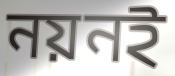
নয়নই